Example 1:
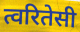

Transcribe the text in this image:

त्वरितेसी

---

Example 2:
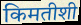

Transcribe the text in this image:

किमतीशी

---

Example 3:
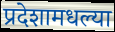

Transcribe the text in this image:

प्रदेशामधल्या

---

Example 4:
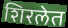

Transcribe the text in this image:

शिरलेत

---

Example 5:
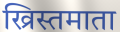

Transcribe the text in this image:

ख्रिस्तमाता